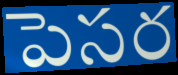
పెసర